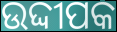
ଉଦ୍ଦୀପକ